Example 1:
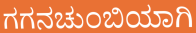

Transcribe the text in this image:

ಗಗನಚುಂಬಿಯಾಗಿ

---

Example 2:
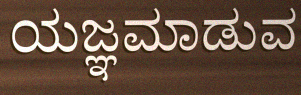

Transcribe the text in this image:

ಯಜ್ಞಮಾಡುವ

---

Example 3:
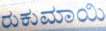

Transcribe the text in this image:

ರುಕುಮಾಯಿ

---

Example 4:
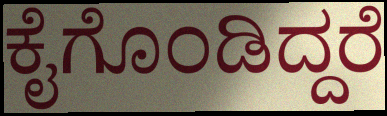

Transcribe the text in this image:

ಕೈಗೊಂಡಿದ್ದರೆ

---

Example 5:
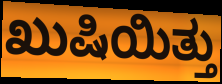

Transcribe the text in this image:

ಖುಷಿಯಿತ್ತು